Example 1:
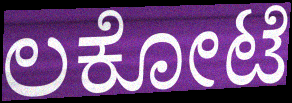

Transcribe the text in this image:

ಲಕೋಟೆ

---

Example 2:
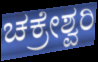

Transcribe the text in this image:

ಚಕ್ರೇಶ್ವರಿ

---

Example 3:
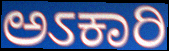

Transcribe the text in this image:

ಅಽಕಾರಿ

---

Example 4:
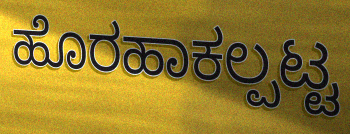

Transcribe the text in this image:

ಹೊರಹಾಕಲ್ಪಟ್ಟ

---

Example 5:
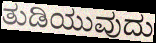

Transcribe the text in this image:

ತುಡಿಯುವುದು